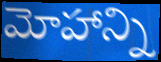
మోహాన్ని